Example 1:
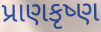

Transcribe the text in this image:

પ્રાણકૃષ્ણ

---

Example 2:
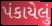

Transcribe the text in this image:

પંકાયેલું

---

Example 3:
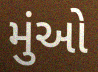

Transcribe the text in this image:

મુંઓ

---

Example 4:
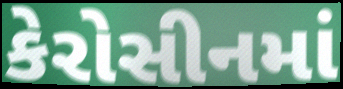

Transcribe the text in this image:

કેરોસીનમાં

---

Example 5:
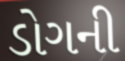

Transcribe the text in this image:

ડોગની